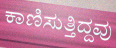
ಕಾಣಿಸುತ್ತಿದ್ದವು